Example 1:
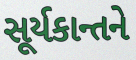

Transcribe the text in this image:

સૂર્યકાન્તને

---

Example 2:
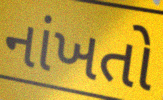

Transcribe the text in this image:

નાંખતો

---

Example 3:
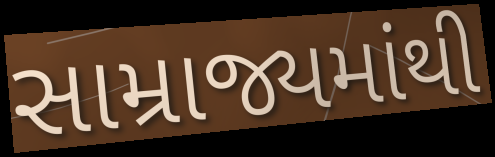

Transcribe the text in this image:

સામ્રાજ્યમાંથી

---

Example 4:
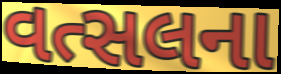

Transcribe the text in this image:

વત્સલના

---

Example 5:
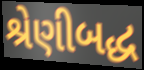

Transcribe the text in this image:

શ્રેણીબદ્ધ